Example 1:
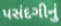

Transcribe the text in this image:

પસંદગીનું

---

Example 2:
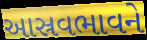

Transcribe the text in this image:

આસ્રવભાવને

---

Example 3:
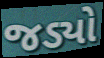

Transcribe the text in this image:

જડ્યો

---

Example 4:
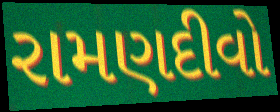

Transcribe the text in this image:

રામણદીવો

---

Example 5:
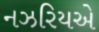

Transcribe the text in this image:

નઝરિયએ